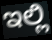
ಇಲ್ಲಿ